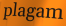
plagam